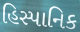
હિસ્પાનિક